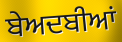
ਬੇਅਦਬੀਆਂ